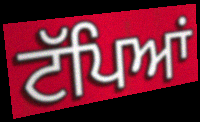
ਟੱਪਿਆਂ